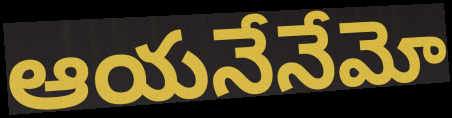
ఆయనేనేమో